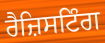
ਰੈਜ਼ਿਸਟਿੰਗ